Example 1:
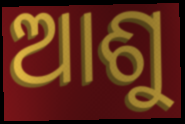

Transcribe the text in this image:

ଆଶୁ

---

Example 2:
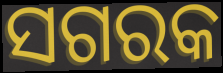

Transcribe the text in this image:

ସଗରକ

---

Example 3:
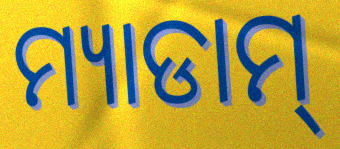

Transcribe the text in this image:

ମ୍ୟାଡାମ୍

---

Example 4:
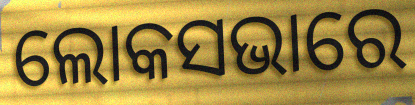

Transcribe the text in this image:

ଲୋକସଭାରେ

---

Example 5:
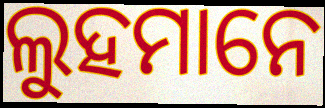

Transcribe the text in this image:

ଲୁହମାନେ